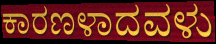
ಕಾರಣಳಾದವಳು